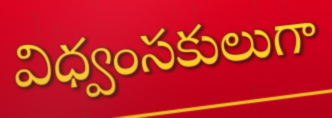
విధ్వంసకులుగా